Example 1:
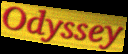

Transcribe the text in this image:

Odyssey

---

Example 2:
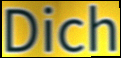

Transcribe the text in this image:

Dich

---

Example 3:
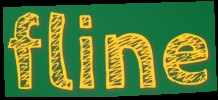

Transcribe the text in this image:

fline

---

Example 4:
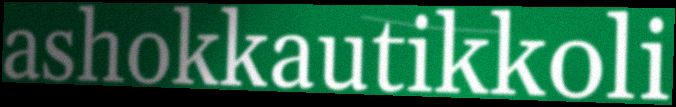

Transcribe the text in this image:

ashokkautikkoli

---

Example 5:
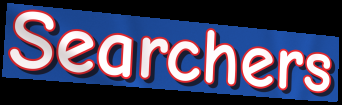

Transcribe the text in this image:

Searchers